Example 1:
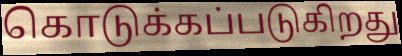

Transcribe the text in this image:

கொடுக்கப்படுகிறது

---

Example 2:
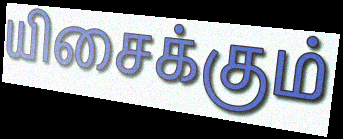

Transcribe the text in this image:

யிசைக்கும்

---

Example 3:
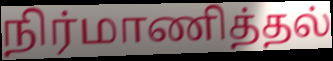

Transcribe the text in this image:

நிர்மாணித்தல்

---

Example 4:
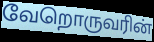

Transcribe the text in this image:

வேறொருவரின்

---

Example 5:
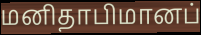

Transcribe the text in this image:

மனிதாபிமானப்